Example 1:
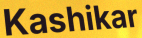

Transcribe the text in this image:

Kashikar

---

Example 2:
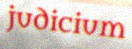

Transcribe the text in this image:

judicium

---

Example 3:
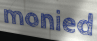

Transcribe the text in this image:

monied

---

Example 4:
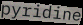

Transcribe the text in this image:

pyridine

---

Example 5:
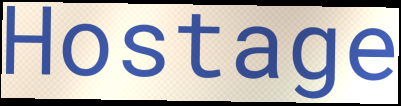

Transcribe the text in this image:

Hostage